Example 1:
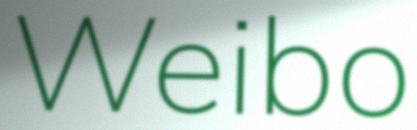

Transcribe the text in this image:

Weibo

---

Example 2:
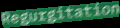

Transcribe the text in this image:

Regurgitation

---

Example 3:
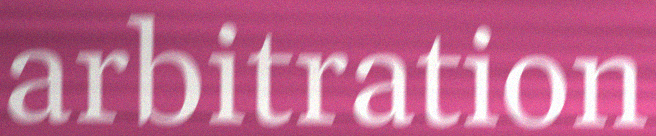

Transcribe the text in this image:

arbitration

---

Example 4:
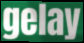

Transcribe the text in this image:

gelay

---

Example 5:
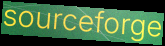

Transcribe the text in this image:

sourceforge